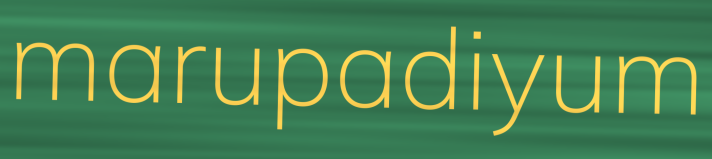
marupadiyum